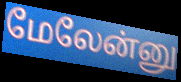
மேலேன்னு